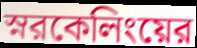
স্নরকেলিংয়ের